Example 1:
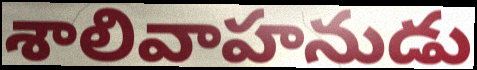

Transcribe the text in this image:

శాలివాహనుడు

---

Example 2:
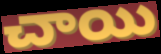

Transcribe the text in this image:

చాయి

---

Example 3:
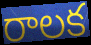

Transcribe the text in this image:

రాలక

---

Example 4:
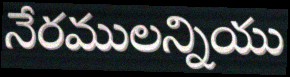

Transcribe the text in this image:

నేరములన్నియు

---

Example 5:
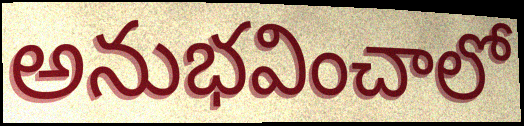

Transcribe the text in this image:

అనుభవించాలో